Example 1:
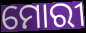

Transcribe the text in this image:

ମୋରୀ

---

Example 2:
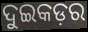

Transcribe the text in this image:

ଦୁଇକଡ଼ର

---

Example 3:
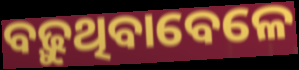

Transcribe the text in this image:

ବଢ଼ୁଥିବାବେଳେ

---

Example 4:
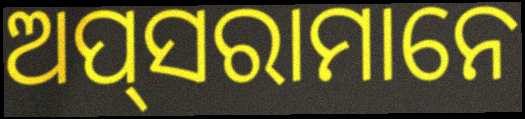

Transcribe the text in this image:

ଅପ୍‍ସରାମାନେ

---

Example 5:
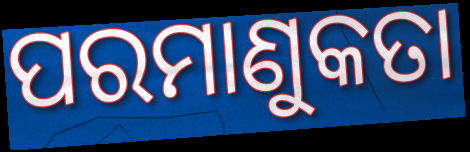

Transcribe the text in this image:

ପରମାଣୁକତା